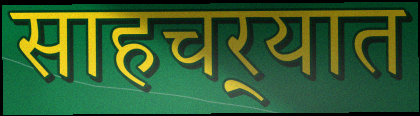
साहचर्यात